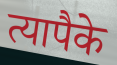
त्यापैके